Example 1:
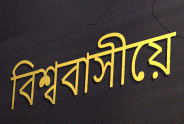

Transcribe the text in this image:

বিশ্ববাসীয়ে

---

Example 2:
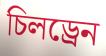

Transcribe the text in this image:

চিলড্ৰেন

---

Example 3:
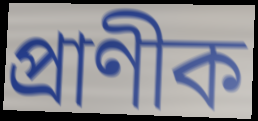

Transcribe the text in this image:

প্ৰাণীক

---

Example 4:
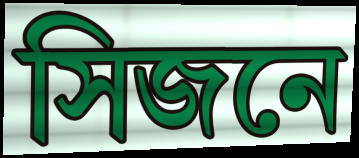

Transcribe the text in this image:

সিজনে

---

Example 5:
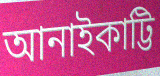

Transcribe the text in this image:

আনাইকাট্টি